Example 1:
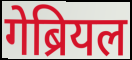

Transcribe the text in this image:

गेब्रियल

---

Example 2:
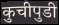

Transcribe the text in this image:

कुचीपुडी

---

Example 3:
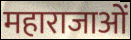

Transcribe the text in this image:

महाराजाओं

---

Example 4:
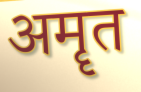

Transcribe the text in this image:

अमॄत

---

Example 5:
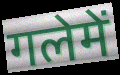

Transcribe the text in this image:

गलेमें